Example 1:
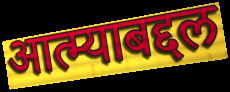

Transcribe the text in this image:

आत्म्याबद्दल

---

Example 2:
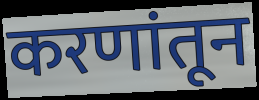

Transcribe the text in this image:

करणांतून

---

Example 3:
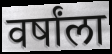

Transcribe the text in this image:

वर्षांला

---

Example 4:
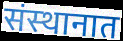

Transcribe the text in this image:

संस्थानात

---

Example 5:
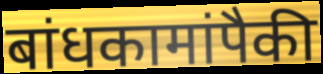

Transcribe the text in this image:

बांधकामांपैकी